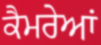
ਕੈਮਰੇਆਂ